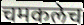
चमकलेच